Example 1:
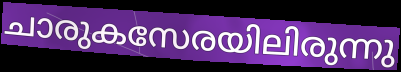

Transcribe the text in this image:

ചാരുകസേരയിലിരുന്നു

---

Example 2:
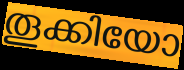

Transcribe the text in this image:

തൂക്കിയോ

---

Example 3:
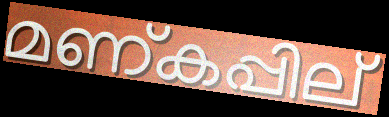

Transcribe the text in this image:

മണ്കപ്പില്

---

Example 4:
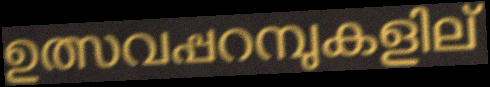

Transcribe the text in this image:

ഉത്സവപ്പറമ്പുകളില്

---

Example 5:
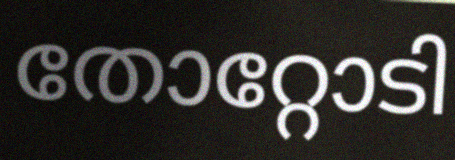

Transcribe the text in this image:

തോറ്റോടി